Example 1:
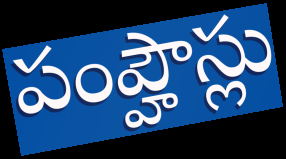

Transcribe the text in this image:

పంప్హౌస్లు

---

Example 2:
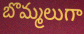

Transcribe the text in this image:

బొమ్మలుగా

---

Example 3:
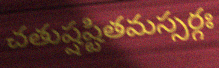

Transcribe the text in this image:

చతుష్షష్టితమస్సర్గః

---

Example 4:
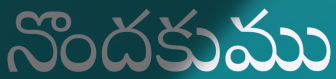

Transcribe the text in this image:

నొందకుము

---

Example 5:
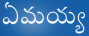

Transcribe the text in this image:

ఏమయ్య